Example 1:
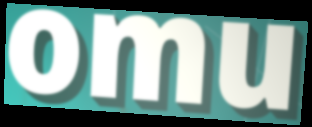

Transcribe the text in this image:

omu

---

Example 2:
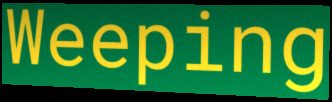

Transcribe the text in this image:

Weeping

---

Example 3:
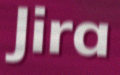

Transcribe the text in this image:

Jira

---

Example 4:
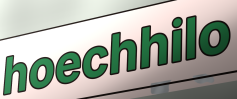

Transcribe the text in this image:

hoechhilo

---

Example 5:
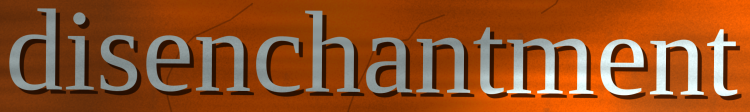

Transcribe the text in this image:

disenchantment